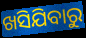
ଖସିଯିବାରୁ